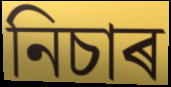
নিচাৰ